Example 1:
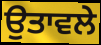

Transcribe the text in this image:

ਉਤਾਵਲੇ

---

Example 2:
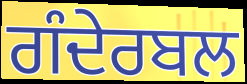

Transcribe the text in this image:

ਗੰਦੇਰਬਲ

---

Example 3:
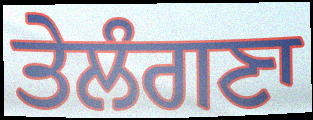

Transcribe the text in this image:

ਤੇਲੰਗਣਾ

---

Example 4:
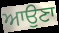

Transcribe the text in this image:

ਆਉਣਾ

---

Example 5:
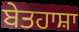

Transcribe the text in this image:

ਬੇਤਹਾਸ਼ਾ